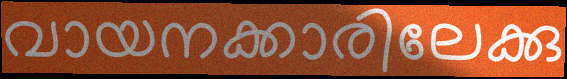
വായനക്കാരിലേക്കു